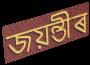
জয়ন্তীৰ